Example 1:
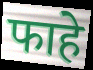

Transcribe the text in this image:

फाहे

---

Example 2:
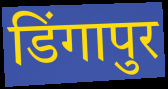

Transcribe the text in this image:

डिंगापुर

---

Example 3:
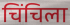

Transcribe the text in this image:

चिंचिला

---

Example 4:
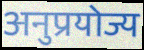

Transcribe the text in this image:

अनुप्रयोज्य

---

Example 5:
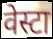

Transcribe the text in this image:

वेस्टा